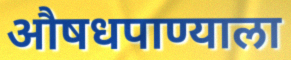
औषधपाण्याला